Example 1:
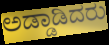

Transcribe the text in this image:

ಅಡ್ಡಾಡಿದರು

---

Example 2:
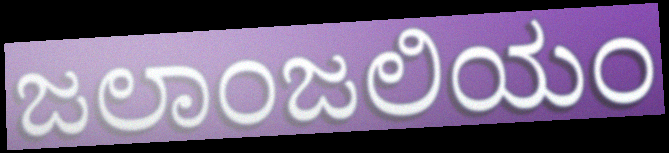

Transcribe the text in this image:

ಜಲಾಂಜಲಿಯಂ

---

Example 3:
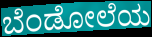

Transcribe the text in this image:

ಬೆಂಡೋಲೆಯ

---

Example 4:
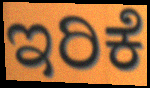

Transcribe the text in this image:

ಇರಿಕೆ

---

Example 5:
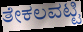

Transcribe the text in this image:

ತೇಕಲವಟ್ಟಿ